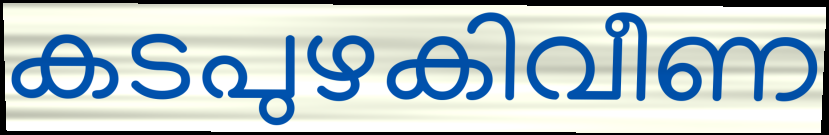
കടപുഴകിവീണ